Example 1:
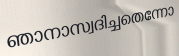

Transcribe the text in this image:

ഞാനാസ്വദിച്ചതെന്നോ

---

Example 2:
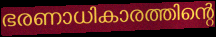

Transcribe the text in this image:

ഭരണാധികാരത്തിന്റെ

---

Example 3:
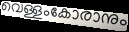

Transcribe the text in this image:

വെള്ളംകോരാനും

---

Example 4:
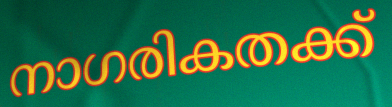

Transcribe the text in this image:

നാഗരികതക്ക്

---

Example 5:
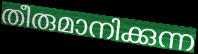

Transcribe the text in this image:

തീരുമാനിക്കുന്ന